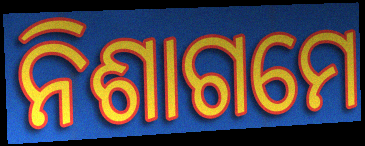
ନିଶାଗମେ